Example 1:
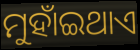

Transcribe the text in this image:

ମୁହାଁଇଥାଏ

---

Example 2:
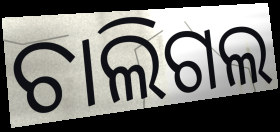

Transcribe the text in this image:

ଚାଲିଗଲ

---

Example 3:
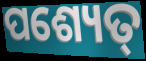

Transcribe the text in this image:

ପଶ୍ୟେତ୍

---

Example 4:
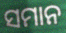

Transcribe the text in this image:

ସମାନ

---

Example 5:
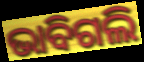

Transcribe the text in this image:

ଭାବିଗଲି